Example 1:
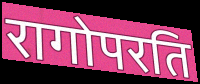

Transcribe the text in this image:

रागोपरति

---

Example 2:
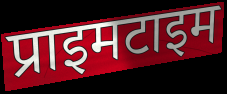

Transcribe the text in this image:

प्राइमटाइम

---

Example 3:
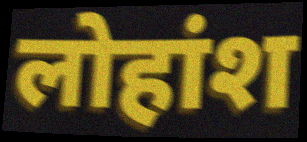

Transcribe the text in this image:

लोहांश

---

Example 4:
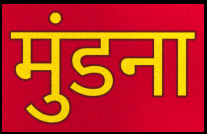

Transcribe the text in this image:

मुंडना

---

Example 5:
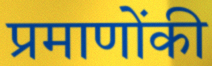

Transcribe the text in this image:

प्रमाणोंकी